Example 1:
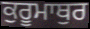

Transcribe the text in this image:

ਕੁਰੂਮਾਥੁਰ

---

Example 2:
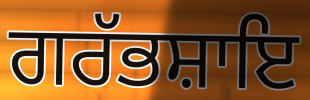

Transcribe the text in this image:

ਗਰੱਭਸ਼ਾਇ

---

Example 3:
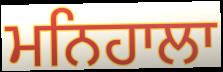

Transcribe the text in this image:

ਮਨਿਹਾਲਾ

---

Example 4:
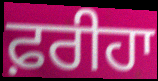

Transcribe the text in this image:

ਫ਼ਰੀਹਾ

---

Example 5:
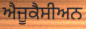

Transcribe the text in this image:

ਐਜੂਕੈਸੀਅਨ